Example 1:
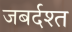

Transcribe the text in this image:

जबर्दश्त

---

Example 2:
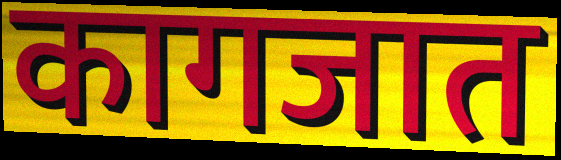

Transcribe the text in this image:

कागजात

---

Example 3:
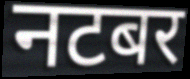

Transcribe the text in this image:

नटबर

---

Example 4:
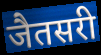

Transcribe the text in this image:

जैतसरी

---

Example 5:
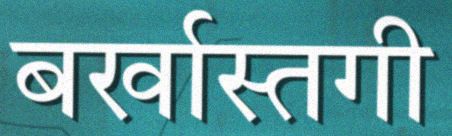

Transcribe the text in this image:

बर्खास्तगी